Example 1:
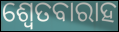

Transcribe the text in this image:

ଶ୍ଵେତବାରାହ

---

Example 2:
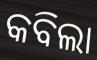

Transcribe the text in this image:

କବିଲା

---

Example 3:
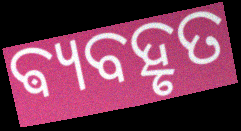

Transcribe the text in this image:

ଵ୍ୟବହୃତ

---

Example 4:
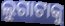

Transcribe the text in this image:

ଲୁଗାଟାକୁ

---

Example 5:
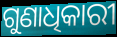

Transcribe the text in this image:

ଗୁଣାଧିକାରୀ